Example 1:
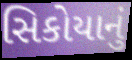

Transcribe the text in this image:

સિકોયાનું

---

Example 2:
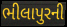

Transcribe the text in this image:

ભીલાપુરની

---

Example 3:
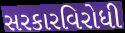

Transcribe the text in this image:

સરકારવિરોધી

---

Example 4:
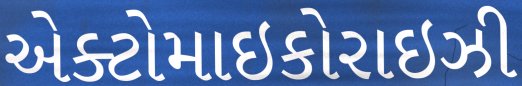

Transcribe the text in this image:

એક્ટોમાઇકોરાઇઝી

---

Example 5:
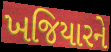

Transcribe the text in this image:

ખજિયારને